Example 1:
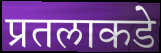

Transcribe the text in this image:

प्रतलाकडे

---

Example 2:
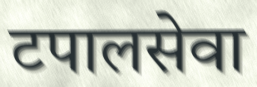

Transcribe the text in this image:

टपालसेवा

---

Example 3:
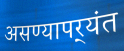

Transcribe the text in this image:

असण्यापर्यंत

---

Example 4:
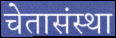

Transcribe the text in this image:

चेतासंस्था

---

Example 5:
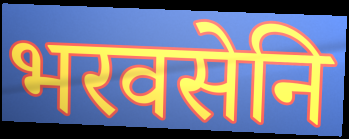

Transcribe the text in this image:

भरवसेनि